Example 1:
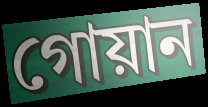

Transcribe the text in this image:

গোয়ান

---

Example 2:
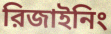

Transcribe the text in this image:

রিজাইনিং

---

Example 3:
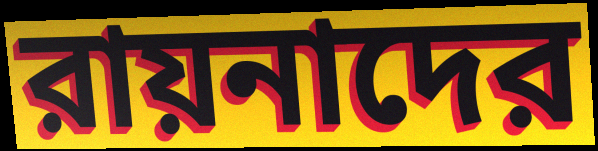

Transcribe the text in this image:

রায়নাদের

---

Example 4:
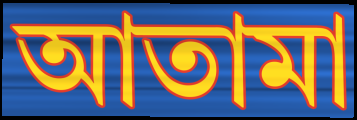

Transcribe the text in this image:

আতামা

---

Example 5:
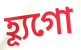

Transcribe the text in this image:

হ্যূগো